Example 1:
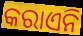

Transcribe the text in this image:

କରାଏନି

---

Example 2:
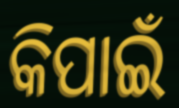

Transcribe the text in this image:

କିପାଇଁ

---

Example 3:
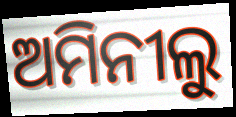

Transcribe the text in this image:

ଅମିନୀଲୁ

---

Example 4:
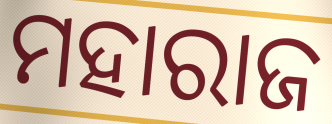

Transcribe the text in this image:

ମହାରାଜ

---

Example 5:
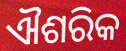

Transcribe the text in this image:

ଐଶରିକ